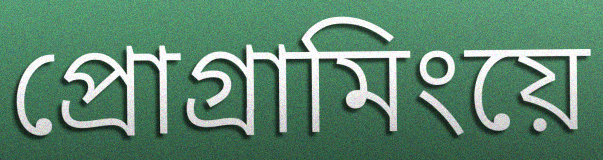
প্রোগ্রামিংয়ে